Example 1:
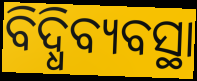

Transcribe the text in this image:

ବିଦ୍ଧିବ୍ୟବସ୍ଥା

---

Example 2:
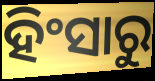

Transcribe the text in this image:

ହିଂସାରୁ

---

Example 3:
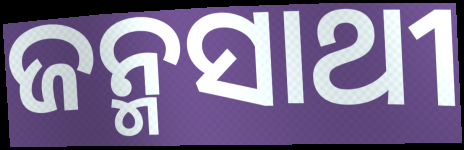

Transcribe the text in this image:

ଜନ୍ମସାଥୀ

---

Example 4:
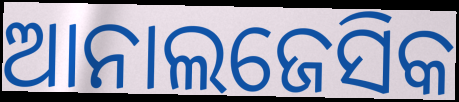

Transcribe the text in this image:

ଆନାଲଜେସିକ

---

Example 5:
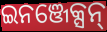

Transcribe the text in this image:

ଇନଞ୍ଜେକ୍ସନ୍